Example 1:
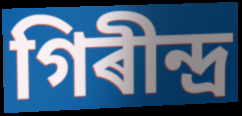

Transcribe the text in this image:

গিৰীন্দ্ৰ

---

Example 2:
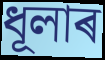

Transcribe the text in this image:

ধূলাৰ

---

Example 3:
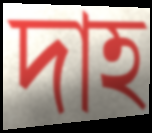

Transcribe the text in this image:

দাহ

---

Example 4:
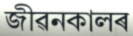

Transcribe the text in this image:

জীৱনকালৰ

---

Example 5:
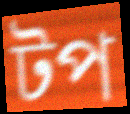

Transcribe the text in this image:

টপ